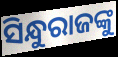
ସିନ୍ଧୁରାଜଙ୍କୁ